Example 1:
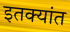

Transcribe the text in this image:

इतक्यांत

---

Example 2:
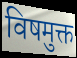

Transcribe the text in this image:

विषमुक्त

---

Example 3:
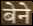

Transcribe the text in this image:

बेने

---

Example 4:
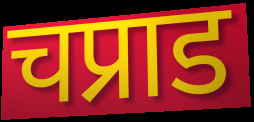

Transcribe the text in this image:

चप्राड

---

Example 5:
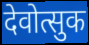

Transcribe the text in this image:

देवोत्सुक